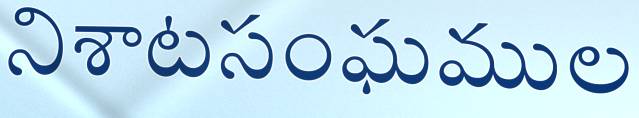
నిశాటసంఘముల